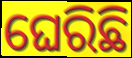
ଘେରିଛି